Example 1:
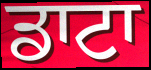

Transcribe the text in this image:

ਡਾਟਾ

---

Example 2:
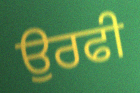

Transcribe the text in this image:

ਉਰਫੀ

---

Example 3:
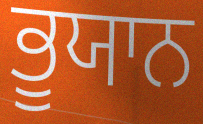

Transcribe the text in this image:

ਭੂਯਾਨ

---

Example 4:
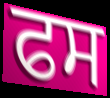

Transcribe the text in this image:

ਫਸ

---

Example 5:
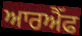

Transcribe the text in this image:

ਆਰਐੱਫ